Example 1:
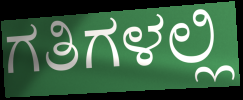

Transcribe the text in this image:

ಗತಿಗಳಲ್ಲಿ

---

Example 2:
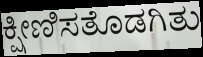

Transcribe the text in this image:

ಕ್ಷೀಣಿಸತೊಡಗಿತು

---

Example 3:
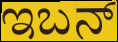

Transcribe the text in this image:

ಇಬನ್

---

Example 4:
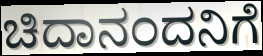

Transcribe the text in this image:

ಚಿದಾನಂದನಿಗೆ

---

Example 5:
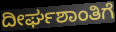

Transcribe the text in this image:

ದೀರ್ಘಶಾಂತಿಗೆ